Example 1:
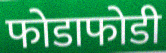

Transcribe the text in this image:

फोडाफोडी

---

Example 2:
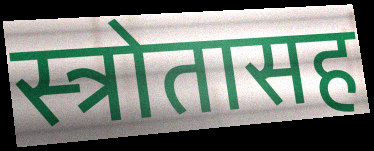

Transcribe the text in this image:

स्त्रोतासह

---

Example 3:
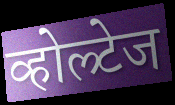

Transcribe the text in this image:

व्होल्टेज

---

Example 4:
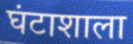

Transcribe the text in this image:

घंटाशाला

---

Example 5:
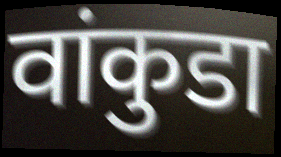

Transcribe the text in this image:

वांकुडा